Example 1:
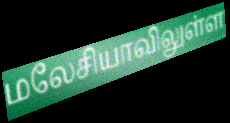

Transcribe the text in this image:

மலேசியாவிலுள்ள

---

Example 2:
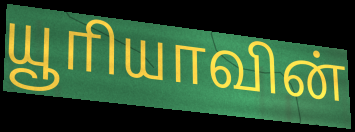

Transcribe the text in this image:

யூரியாவின்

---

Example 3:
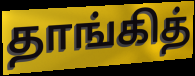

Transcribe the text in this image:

தாங்கித்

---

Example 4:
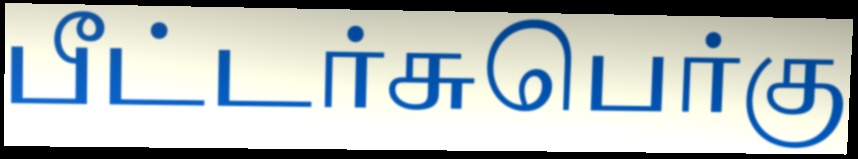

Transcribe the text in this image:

பீட்டர்சுபெர்கு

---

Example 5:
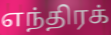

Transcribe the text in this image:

எந்திரக்